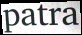
patra